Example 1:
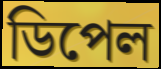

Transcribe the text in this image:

ডিপেল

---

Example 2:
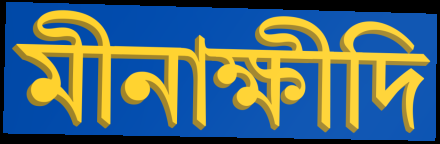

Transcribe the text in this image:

মীনাক্ষীদি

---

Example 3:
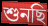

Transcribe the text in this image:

শুনছি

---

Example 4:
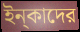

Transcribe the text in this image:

ইন্‌কাদের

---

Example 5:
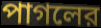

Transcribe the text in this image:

পাগলের